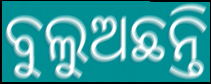
ବୁଲୁଅଛନ୍ତି